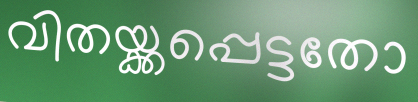
വിതയ്ക്കപ്പെട്ടതോ